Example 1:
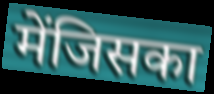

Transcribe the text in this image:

मेंजिसका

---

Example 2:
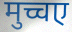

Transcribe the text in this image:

मुच्चए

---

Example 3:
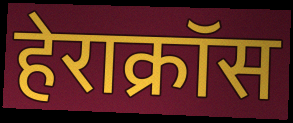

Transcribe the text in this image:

हेराक्रॉस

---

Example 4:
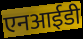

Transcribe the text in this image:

एनआईडी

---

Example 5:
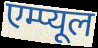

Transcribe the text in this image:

एम्प्यूल